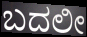
ಬದಲೀ